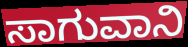
ಸಾಗುವಾನಿ